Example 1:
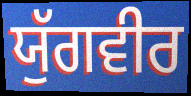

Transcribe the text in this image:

ਯੁੱਗਵੀਰ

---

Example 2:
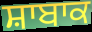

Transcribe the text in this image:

ਸ਼ਾਬਾਕ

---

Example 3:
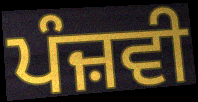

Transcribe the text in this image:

ਪੰਜ਼ਵੀ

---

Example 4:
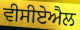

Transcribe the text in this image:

ਵੀਸੀਏਐਲ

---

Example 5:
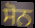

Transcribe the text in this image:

ਸੋਨ